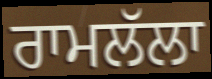
ਰਾਮਲੱਲਾ